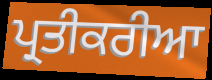
ਪ੍ਰਤੀਕਰੀਆ